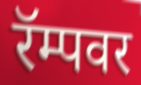
रॅम्पवर